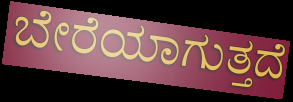
ಬೇರೆಯಾಗುತ್ತದೆ